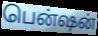
பென்ஷன்